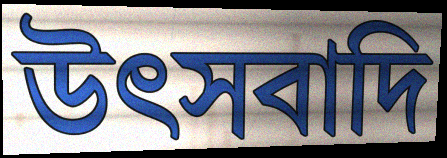
উৎসবাদি